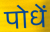
पोधें